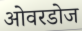
ओवरडोज